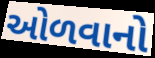
ઓળવાનો